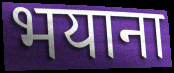
भयाना